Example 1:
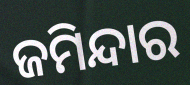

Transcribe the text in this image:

ଜମିନ୍ଦାର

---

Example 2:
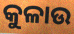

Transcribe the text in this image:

କୁଳାଉ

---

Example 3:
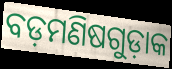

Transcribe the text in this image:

ବଡ଼ମଣିଷଗୁଡ଼ାକ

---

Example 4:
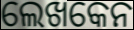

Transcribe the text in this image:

ଲେଖକେନ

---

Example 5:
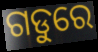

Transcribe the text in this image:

ଗଡୁରେ